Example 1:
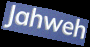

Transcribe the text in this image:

Jahweh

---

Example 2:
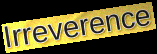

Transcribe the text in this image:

Irreverence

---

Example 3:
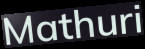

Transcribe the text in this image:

Mathuri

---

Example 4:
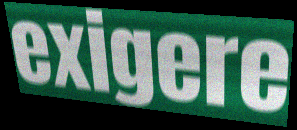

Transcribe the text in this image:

exigere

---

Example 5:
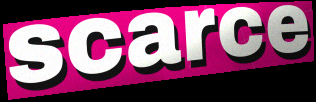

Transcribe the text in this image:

scarce